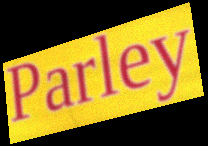
Parley